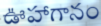
ఊహాగానం